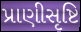
પ્રાણીસૃષ્ટિ